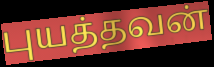
புயத்தவன்